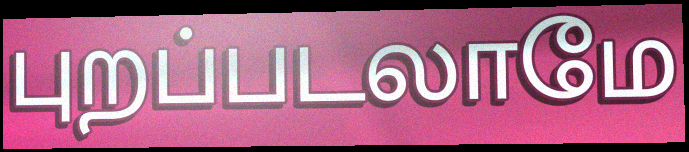
புறப்படலாமே